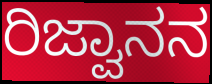
ರಿಜ್ವಾನನ